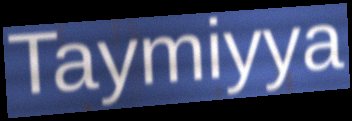
Taymiyya